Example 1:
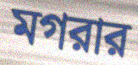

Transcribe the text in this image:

মগরার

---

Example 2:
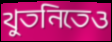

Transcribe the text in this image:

থুতনিতেও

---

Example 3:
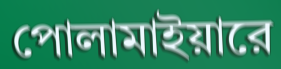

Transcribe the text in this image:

পোলামাইয়ারে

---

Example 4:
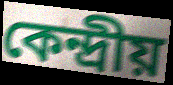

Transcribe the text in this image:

কেন্দ্রীয়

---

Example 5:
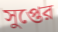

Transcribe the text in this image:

সুপ্তের